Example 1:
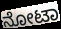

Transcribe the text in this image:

ನೋಟಾ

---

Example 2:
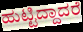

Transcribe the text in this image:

ಹುಟ್ಟಿದ್ದಾದರೆ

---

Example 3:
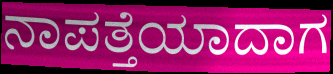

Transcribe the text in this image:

ನಾಪತ್ತೆಯಾದಾಗ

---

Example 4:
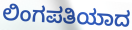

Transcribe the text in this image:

ಲಿಂಗಪತಿಯಾದ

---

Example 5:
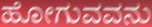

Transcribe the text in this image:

ಹೋಗುವವನು